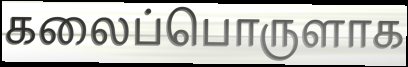
கலைப்பொருளாக